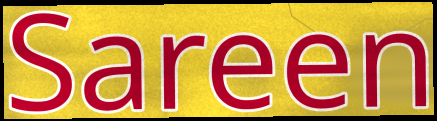
Sareen